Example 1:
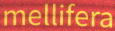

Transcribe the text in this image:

mellifera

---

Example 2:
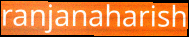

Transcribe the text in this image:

ranjanaharish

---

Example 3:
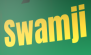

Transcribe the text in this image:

Swamji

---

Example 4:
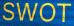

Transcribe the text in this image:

SWOT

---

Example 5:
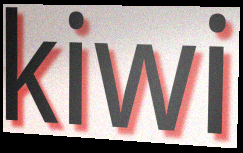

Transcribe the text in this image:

kiwi